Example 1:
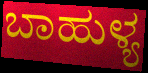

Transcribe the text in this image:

ಬಾಹುಳ್ಯ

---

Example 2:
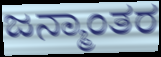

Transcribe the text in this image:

ಜನ್ಮಾಂತರ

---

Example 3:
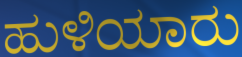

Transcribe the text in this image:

ಹುಳಿಯಾರು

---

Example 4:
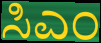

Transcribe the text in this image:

ಸಿಎಂ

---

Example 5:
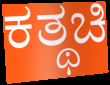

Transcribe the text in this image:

ಕತ್ಥಚಿ